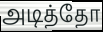
அடித்தோ